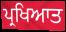
ਪ੍ਰਖਿਆਤ